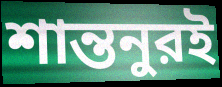
শান্তনুরই